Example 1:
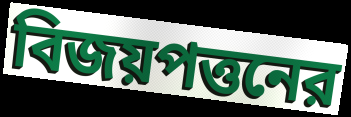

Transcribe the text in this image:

বিজয়পত্তনের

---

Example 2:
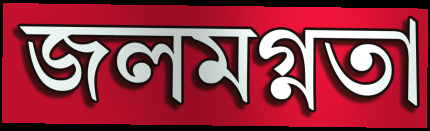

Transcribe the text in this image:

জলমগ্নতা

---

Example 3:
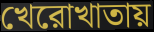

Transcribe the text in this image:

খেরোখাতায়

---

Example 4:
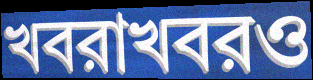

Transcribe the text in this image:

খবরাখবরও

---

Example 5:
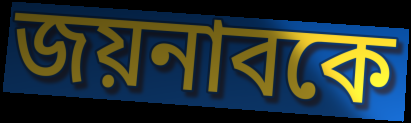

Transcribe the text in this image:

জয়নাবকে